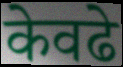
केवढे